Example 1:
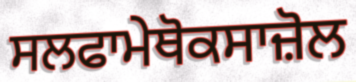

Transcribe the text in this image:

ਸਲਫਾਮੇਥੋਕਸਾਜ਼ੋਲ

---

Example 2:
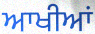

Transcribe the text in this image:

ਆਖੀਆਂ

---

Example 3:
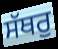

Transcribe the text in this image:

ਸੱਥਰੁ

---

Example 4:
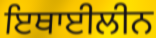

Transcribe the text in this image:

ਇਥਾਈਲੀਨ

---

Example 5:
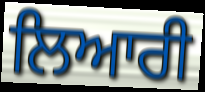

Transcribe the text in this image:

ਲਿਆਰੀ